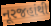
નૂરજહાંથી